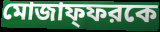
মোজাফ্ফরকে